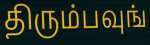
திரும்பவுங்